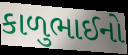
કાળુભાઈનો